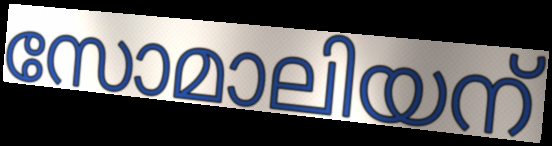
സോമാലിയന്